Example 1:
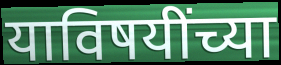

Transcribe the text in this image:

याविषयींच्या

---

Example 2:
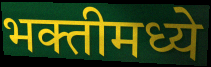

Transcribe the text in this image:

भक्तीमध्ये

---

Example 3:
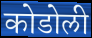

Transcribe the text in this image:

कोडोली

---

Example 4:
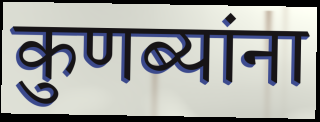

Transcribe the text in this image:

कुणब्यांना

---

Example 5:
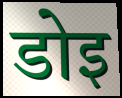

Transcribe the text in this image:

डोइ